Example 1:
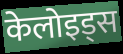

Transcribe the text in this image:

केलोइड्स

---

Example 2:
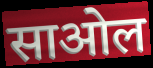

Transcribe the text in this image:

साओल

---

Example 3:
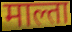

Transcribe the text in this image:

माल्ता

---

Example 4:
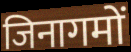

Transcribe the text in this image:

जिनागमों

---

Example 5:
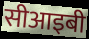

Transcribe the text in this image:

सीआइबी